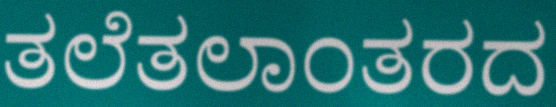
ತಲೆತಲಾಂತರದ